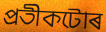
প্ৰতীকটোৰ